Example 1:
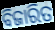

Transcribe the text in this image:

ବିଜାରିତ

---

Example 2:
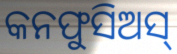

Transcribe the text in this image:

କନଫୁସିଅସ୍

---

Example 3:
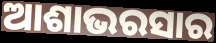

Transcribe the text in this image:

ଆଶାଭରସାର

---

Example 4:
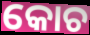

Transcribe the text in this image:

କୋଚ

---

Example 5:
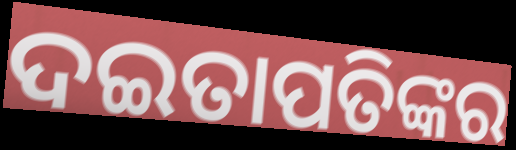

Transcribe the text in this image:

ଦଇତାପତିଙ୍କର